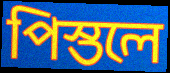
পিস্তলে